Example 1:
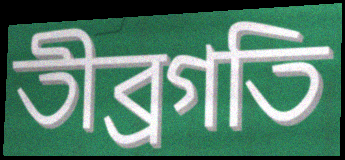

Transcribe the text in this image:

তীব্রগতি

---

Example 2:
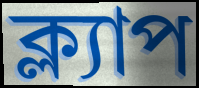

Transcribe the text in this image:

ক্ল্যাপ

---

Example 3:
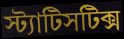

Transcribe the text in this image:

স্ট্যাটিসটিক্স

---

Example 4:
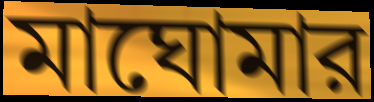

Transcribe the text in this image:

মাঘোমার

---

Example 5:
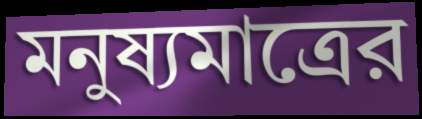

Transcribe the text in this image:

মনুষ্যমাত্রের